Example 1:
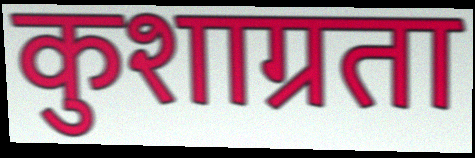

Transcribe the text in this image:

कुशाग्रता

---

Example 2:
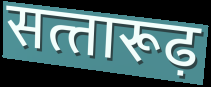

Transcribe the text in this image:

सत्‍तारूढ़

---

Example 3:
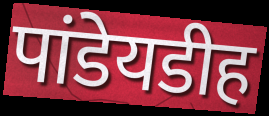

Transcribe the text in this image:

पांडेयडीह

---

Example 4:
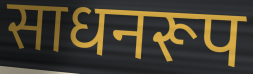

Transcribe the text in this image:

साधनरूप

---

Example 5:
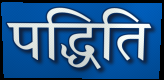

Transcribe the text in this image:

पद्धिति